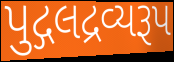
પુદ્ગલદ્રવ્યરૂપ